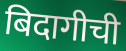
बिदागीची